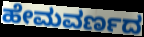
ಹೇಮವರ್ಣದ